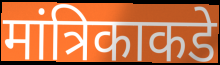
मांत्रिकाकडे